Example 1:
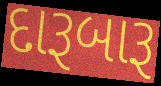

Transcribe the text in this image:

દારૂબારૂ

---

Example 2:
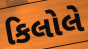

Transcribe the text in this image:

કિલોલે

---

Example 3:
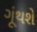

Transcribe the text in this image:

ગૂંથશે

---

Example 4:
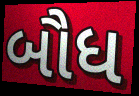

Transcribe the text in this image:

બૌધ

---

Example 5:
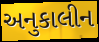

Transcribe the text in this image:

અનુકાલીન